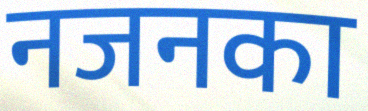
नजनका